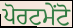
ਪੋਰਟਮੇਂਟੋ